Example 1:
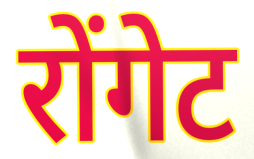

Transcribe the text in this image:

रोंगेट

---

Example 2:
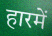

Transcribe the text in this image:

हारमें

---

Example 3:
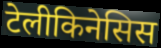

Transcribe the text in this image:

टेलीकिनेसिस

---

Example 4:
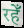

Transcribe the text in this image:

रहेँ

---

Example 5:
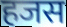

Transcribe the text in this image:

हजस